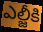
ఎల్జీకి